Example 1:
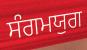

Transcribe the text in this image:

ਸੰਗਮਯੁਗ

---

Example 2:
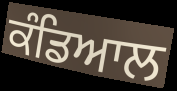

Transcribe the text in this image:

ਕੰਡਿਆਲ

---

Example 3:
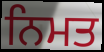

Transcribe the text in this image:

ਨਿਮਤ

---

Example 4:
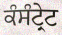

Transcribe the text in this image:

ਕੰਸੰਟ੍ਰੇਟ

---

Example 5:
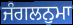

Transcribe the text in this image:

ਜੰਗਲਨੁਮਾ